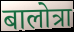
बालोत्रा